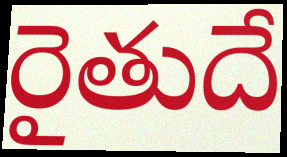
రైతుదే